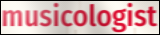
musicologist